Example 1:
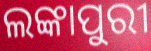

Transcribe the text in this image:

ଲଙ୍କାପୁରୀ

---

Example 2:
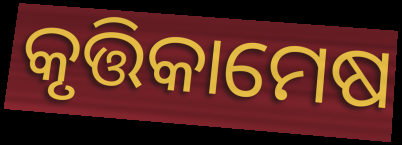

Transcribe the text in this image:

କୃତ୍ତିକାମେଷ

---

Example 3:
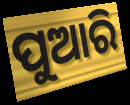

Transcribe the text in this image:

ପୁଆରି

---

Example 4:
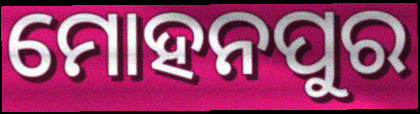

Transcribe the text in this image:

ମୋହନପୁର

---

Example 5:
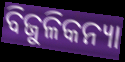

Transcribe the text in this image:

ବିଜୁଳିକନ୍ୟା